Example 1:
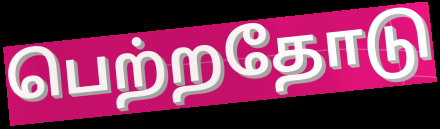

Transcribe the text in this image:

பெற்றதோடு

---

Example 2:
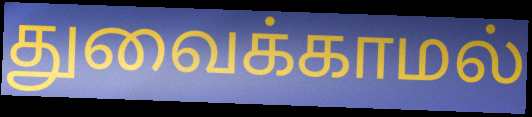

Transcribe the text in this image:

துவைக்காமல்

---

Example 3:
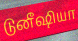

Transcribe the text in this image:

டுனீஷியா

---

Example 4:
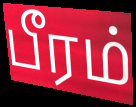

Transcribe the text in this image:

பீரம்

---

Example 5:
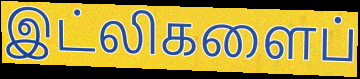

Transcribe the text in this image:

இட்லிகளைப்